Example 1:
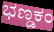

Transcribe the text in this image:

ಭಣ್ಡಕಂ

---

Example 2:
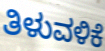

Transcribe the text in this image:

ತಿಳುವಳಿಕೆ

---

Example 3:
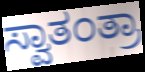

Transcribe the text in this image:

ಸ್ವಾತಂತ್ರಾ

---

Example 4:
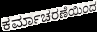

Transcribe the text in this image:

ಕರ್ಮಾಚರಣೆಯಿಂದ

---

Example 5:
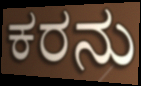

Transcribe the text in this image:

ಕರನು